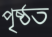
পৃষ্ঠত